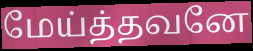
மேய்த்தவனே